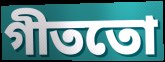
গীততো